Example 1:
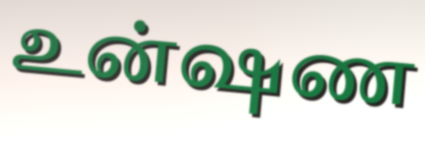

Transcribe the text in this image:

உன்ஷண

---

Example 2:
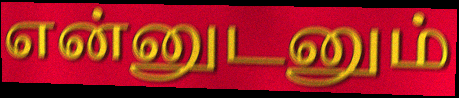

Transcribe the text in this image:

என்னுடனும்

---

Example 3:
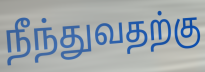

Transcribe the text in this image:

நீந்துவதற்கு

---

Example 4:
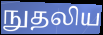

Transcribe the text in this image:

நுதலிய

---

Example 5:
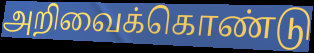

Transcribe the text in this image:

அறிவைக்கொண்டு